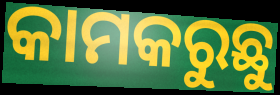
କାମକରୁଛୁ